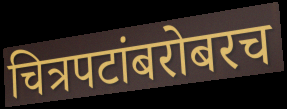
चित्रपटांबरोबरच